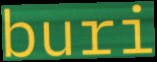
buri